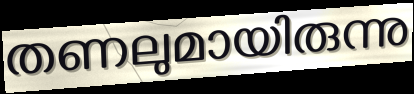
തണലുമായിരുന്നു